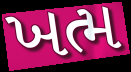
ખત્મ